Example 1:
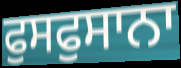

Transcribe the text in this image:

ਫੁਸਫੁਸਾਨਾ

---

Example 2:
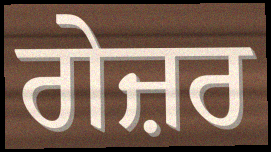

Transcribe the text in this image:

ਗੇਜ਼ਰ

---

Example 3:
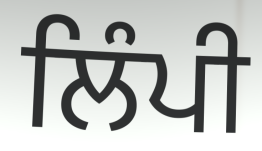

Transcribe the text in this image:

ਲਿੰਪੀ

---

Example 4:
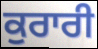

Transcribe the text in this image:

ਕੁਰਾਰੀ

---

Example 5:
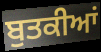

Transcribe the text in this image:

ਬੁਤਕੀਆਂ